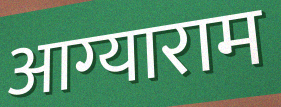
आग्याराम